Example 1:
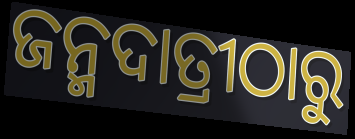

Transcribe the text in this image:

ଜନ୍ମଦାତ୍ରୀଠାରୁ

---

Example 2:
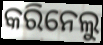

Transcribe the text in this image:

କରିନେଲୁ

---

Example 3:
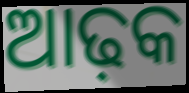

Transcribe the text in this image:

ଆଢ଼କ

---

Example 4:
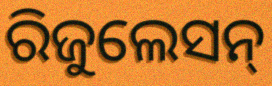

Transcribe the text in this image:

ରିଜୁଲେସନ୍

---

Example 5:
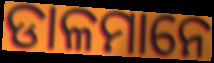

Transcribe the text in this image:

ଡାଳମାନେ